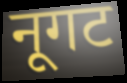
नूगट